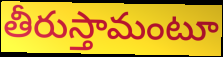
తీరుస్తామంటూ